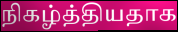
நிகழ்த்தியதாக